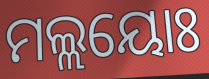
ମଲ୍ଲୟୋଃ